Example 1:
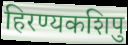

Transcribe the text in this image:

हिरण्यकशिपु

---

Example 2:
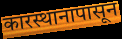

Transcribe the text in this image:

कारस्थानापासून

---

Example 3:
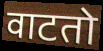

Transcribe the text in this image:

वाटतो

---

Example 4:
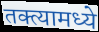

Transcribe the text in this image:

तक्त्यामध्ये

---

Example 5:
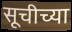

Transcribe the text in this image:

सूचीच्या